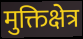
मुक्तिक्षेत्र